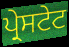
ਪ੍ਰੇਸਟੇਟ